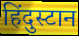
हिंदुस्टान